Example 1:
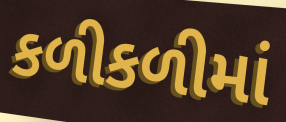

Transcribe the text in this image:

કળીકળીમાં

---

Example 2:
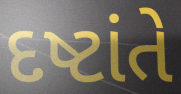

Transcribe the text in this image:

દષ્ટાંતે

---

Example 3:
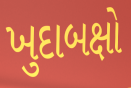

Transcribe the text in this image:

ખુદાબક્ષો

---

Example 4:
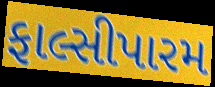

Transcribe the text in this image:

ફાલ્સીપારમ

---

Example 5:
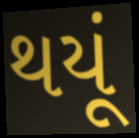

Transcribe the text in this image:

થયૂં